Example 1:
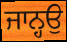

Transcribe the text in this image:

ਜਾਨ੍ਹਉ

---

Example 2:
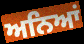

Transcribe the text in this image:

ਅਨਿਆਂ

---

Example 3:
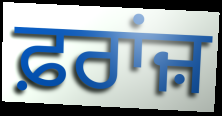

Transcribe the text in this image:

ਫ਼ਰਾਂਜ਼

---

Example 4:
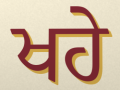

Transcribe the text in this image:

ਖਹੇ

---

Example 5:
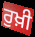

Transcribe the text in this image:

ਰੁਖ਼ੀ